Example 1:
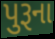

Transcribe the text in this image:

પુરૂના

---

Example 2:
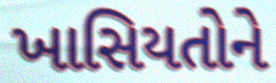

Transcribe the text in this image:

ખાસિયતોને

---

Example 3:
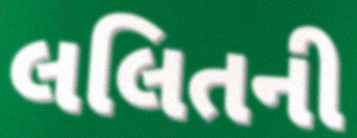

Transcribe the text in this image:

લલિતની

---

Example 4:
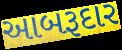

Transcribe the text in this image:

આબરૂદાર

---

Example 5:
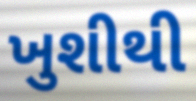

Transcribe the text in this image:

ખુશીથી